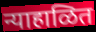
न्याहाळित